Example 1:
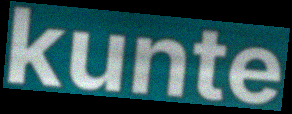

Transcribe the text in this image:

kunte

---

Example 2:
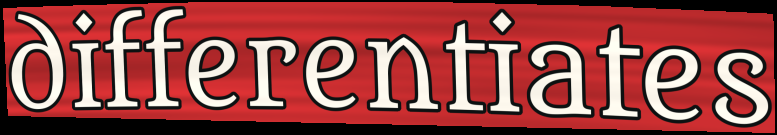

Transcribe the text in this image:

differentiates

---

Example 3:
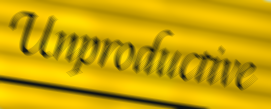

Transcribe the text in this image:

Unproductive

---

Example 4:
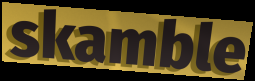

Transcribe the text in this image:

skamble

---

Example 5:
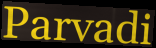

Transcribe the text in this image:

Parvadi